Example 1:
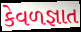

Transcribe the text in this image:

કેવળજ્ઞાત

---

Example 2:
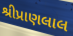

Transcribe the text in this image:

શ્રીપ્રાણલાલ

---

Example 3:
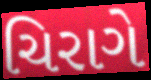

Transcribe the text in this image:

ચિરાગે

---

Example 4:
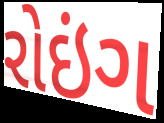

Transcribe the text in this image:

રોઇંગ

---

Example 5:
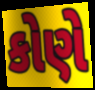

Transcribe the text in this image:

કોણે